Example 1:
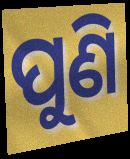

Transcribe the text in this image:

ପୁଣି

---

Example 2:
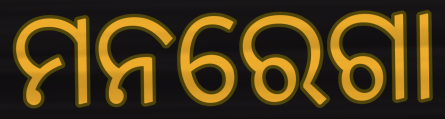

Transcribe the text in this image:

ମନରେଗା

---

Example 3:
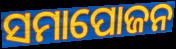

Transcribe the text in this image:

ସମାପୋଜନ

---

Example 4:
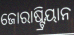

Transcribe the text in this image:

ଜୋରାଷ୍ଟ୍ରିୟାନ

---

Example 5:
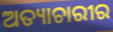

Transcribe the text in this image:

ଅତ୍ୟାଚାରୀର